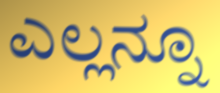
ಎಲ್ಲನ್ನೂ